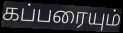
கப்பரையும்